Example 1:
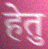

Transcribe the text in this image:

हेतु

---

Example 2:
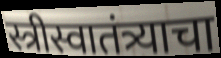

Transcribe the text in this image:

स्त्रीस्वातंत्र्याचा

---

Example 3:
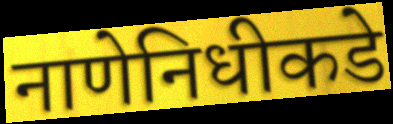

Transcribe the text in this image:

नाणेनिधीकडे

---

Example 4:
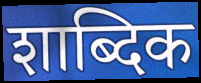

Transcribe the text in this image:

शाब्दिक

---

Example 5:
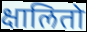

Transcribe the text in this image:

क्षालितो